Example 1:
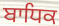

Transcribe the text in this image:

ਬਾਧਿਕ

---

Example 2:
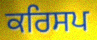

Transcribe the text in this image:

ਕਰਿਸਪ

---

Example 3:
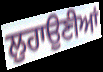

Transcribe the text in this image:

ਲੁਹਾਉਣੀਆਂ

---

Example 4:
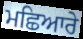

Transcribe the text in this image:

ਮਛਿਆਰੇ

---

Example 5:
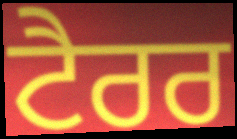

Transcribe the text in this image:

ਟੈਰਰ